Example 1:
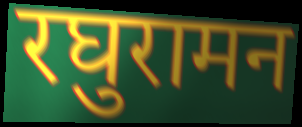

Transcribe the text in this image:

रघुरामन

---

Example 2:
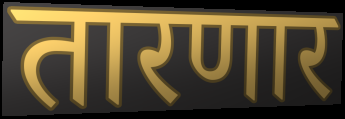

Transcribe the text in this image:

तारणार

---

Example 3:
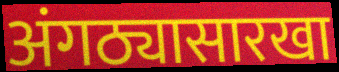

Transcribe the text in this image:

अंगठ्यासारखा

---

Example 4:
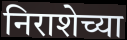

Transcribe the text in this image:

निराशेच्या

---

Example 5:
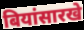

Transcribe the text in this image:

बियांसारखे